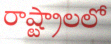
రాష్ట్రాలలో